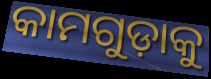
କାମଗୁଡ଼ାକୁ